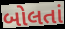
બોલતાં